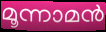
മൂന്നാമൻ